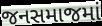
જનસમાજમાં